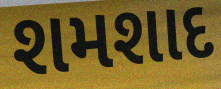
શમશાદ